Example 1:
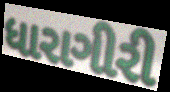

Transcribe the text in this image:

ધારાગીરી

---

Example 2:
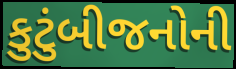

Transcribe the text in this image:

કુટુંબીજનોની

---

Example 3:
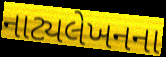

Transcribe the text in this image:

નાટ્યલેખનના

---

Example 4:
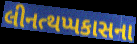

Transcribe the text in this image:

લીનત્થપ્પકાસના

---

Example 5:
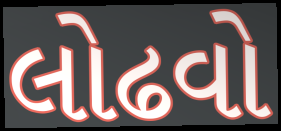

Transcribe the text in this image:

લોઢવો